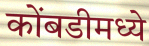
कोंबडीमध्ये